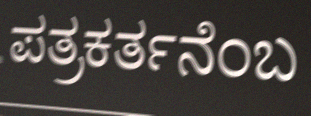
ಪತ್ರಕರ್ತನೆಂಬ